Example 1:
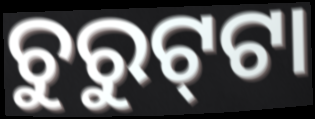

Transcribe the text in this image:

ଚୁରୁଟ୍‍ଟା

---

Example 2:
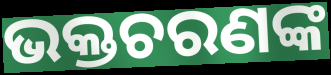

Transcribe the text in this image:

ଭକ୍ତଚରଣଙ୍କ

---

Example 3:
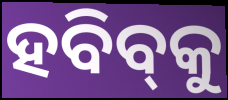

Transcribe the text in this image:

ହବିବ୍‌କୁ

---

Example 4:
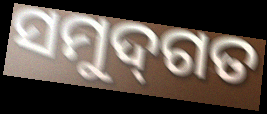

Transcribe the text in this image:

ସମୁଦ୍‌ଗତ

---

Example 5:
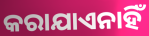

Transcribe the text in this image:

କରାଯାଏନାହିଁ